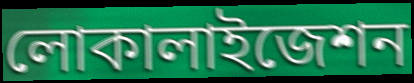
লোকালাইজেশন